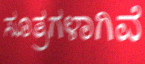
ಸೂತ್ರಗಳಾಗಿವೆ